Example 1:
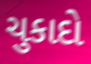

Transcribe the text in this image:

ચુકાદો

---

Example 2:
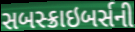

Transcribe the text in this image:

સબસ્ક્રાઇબર્સની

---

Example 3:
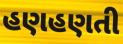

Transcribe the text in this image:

હણહણતી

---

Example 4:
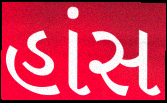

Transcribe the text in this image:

હાંસ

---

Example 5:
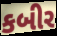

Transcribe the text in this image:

કબીર